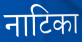
नाटिका